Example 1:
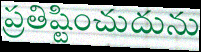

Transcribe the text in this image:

ప్రతిష్టించుదును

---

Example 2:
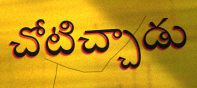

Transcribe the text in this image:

చోటిచ్చాడు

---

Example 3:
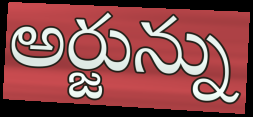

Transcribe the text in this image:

అర్జున్ను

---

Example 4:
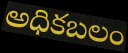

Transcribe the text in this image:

అధికబలం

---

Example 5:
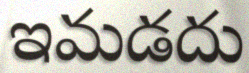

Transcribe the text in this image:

ఇమడదు